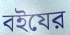
বইযের